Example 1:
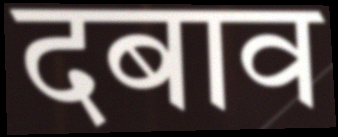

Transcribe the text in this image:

दबाव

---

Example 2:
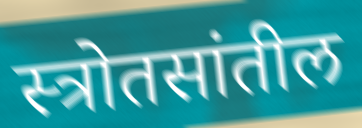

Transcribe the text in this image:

स्त्रोतसांतील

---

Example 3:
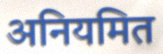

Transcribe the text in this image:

अनियमित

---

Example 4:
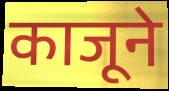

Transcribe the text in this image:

काजूने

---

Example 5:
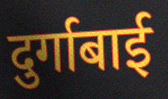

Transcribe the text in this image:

दुर्गाबाई